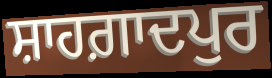
ਸ਼ਾਹਗ਼ਾਦਪੁਰ